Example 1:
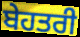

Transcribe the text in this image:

ਬੇਹਤਰੀ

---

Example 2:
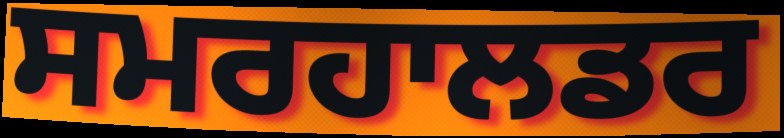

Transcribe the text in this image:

ਸਮਰਹਾਲਡਰ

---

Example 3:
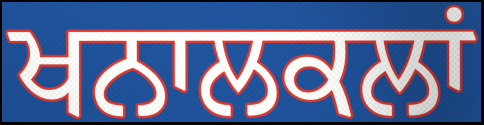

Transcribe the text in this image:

ਖਨਾਲਕਲਾਂ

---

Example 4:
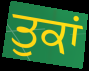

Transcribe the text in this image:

ਤੁਕਾਂ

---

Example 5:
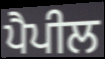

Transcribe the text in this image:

ਪੈਪੀਲ